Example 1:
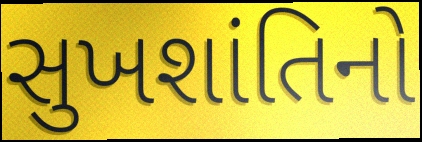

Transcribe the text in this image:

સુખશાંતિનો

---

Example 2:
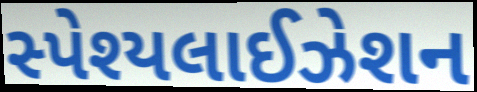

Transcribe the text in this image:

સ્પેશ્યલાઈઝેશન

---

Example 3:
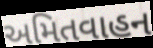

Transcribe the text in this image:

અમિતવાહન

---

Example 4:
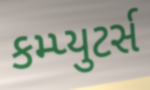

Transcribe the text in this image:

કમ્પ્યુટર્સ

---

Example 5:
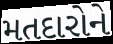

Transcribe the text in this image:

મતદારોને